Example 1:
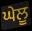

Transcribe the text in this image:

ਘੇਲੂ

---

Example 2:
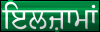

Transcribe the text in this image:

ਇਲਜ਼ਾਮਾਂ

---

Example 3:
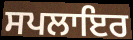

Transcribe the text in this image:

ਸਪਲਾਇਰ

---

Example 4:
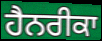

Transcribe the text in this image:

ਹੈਨਰੀਕਾ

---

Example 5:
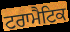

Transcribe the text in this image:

ਟਰਾਮੈਟਿਕ